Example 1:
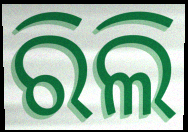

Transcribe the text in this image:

ରିଲି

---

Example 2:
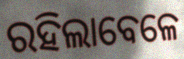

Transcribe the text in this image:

ରହିଲାବେଳେ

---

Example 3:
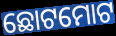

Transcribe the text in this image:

ଛୋଟମୋଟ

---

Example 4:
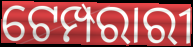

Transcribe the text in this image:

ଟେମ୍ପରାରୀ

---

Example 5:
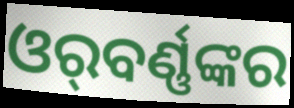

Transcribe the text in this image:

ଓର୍‌ବର୍ଣ୍ଣଙ୍କର